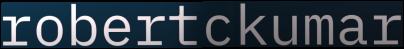
robertckumar